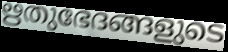
ഋതുഭേദങ്ങളുടെ